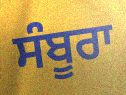
ਸੰਬੂਰਾ